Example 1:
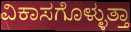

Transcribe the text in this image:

ವಿಕಾಸಗೊಳ್ಳುತ್ತಾ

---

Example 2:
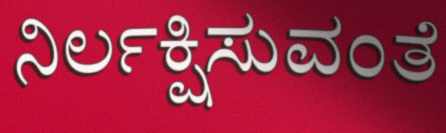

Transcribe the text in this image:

ನಿರ್ಲಕ್ಷಿಸುವಂತೆ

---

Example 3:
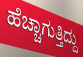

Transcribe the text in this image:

ಹೆಚ್ಚಾಗುತ್ತಿದ್ದು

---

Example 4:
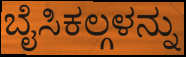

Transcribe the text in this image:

ಬೈಸಿಕಲ್ಗಳನ್ನು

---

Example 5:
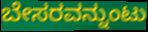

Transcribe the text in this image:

ಬೇಸರವನ್ನುಂಟು